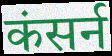
कंसर्न